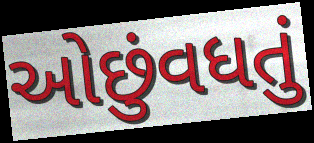
ઓછુંવધતું